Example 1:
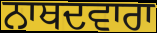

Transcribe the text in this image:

ਨਾਥਦਵਾਰਾ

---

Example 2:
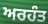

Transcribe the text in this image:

ਅਰਹੰਤ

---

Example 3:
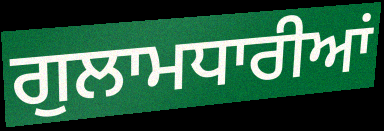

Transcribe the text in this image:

ਗੁਲਾਮਧਾਰੀਆਂ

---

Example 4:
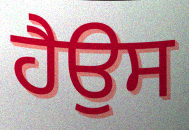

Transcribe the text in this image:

ਹੈਉਸ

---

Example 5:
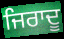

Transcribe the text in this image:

ਜਿਰਾਦੂ